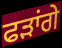
ਫੜਾਂਗੇ